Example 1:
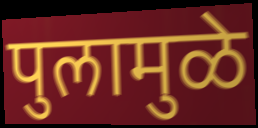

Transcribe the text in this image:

पुलामुळे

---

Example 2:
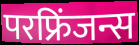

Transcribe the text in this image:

परफ्रिंजन्स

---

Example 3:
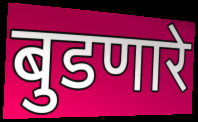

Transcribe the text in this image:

बुडणारे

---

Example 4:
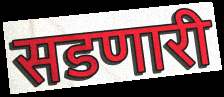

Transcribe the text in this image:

सडणारी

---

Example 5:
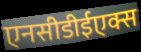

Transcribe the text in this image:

एनसीडीईएक्स